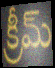
క్రీమ్